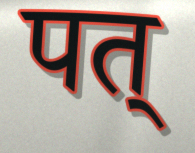
पत्